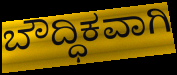
ಬೌದ್ಧಿಕವಾಗಿ